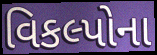
વિકલ્પોના